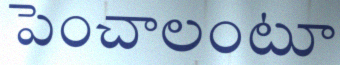
పెంచాలంటూ